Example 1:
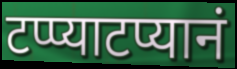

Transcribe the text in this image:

टप्प्याटप्यानं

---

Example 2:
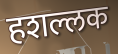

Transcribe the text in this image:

हशल्लक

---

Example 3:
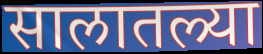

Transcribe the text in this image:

सालातल्या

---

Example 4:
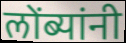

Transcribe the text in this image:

लोंब्यांनी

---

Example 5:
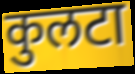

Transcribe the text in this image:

कुलटा